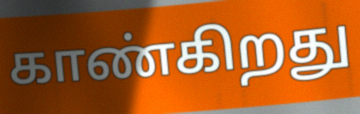
காண்கிறது